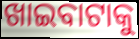
ଖାଇବାଟାକୁ